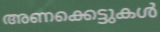
അണക്കെട്ടുകൾ